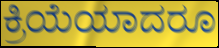
ಕ್ರಿಯೆಯಾದರೂ